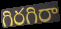
గిరగిరా